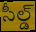
సీల్డ్